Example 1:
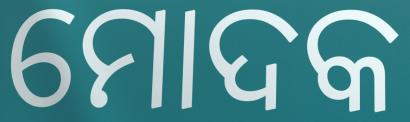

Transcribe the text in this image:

ମୋଦକ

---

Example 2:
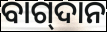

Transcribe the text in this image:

ବାଗ୍‍ଦାନ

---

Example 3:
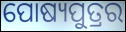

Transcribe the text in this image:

ପୋଷ୍ୟପୁତ୍ରର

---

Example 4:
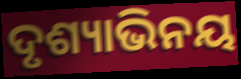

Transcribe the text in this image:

ଦୃଶ୍ୟାଭିନୟ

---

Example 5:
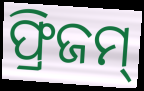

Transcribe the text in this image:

ଫ୍ରିଜମ୍